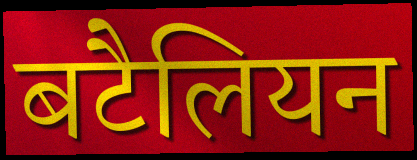
बटैलियन